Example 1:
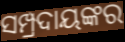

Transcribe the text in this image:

ସମ୍ପ୍ରଦାୟଙ୍କର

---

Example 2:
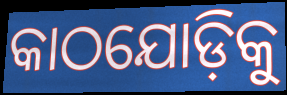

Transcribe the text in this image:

କାଠଯୋଡ଼ିକୁ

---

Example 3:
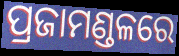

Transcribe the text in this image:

ପ୍ରଜାମଣ୍ଡଳରେ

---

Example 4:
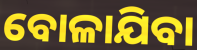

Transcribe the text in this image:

ବୋଳାଯିବା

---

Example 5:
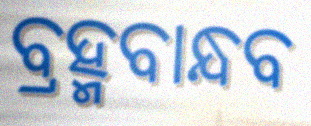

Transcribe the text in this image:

ବ୍ରହ୍ମବାନ୍ଧବ